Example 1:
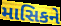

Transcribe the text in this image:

માસિકને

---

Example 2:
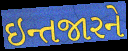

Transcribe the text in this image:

ઇન્તજારને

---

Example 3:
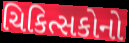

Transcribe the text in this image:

ચિકિત્સકોનો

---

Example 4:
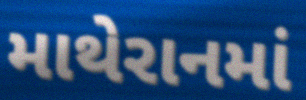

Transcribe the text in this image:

માથેરાનમાં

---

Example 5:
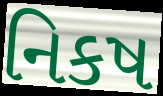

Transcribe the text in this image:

નિકષ